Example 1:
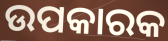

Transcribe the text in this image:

ଉପକାରକ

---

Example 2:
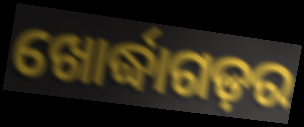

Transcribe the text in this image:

ଖୋର୍ଦ୍ଧାଗଡ଼ର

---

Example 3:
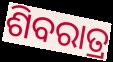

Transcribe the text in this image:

ଶିବରାତ୍ର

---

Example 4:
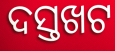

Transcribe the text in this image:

ଦସ୍ତଖଟ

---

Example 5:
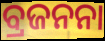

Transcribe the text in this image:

ବ୍ରଜନନା